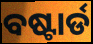
ବଷ୍ଟାର୍ଡ